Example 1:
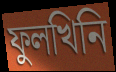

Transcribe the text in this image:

ফুলখিনি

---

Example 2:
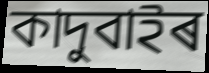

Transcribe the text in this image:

কাদুবাইৰ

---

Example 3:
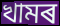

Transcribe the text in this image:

খামৰ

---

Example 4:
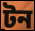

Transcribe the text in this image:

টন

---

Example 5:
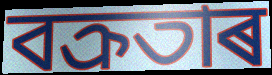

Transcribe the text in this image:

বক্ৰতাৰ